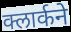
क्लार्कने